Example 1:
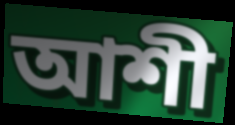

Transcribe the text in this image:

আশী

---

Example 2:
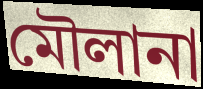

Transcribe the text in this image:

মৌলানা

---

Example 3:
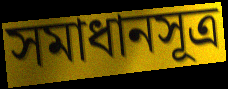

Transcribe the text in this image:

সমাধানসূত্ৰ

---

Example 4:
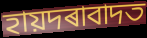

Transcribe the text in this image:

হায়দৰাবাদত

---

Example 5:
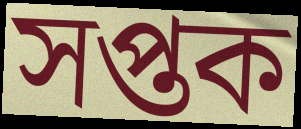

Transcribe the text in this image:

সপ্তক